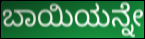
ಬಾಯಿಯನ್ನೇ